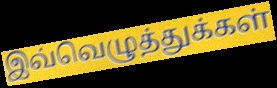
இவ்வெழுத்துக்கள்